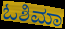
ಓಶಿಮಾ